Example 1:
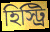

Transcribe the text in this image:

হিস্ট্রি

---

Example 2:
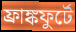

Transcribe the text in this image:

ফ্রাঙ্কফুর্টে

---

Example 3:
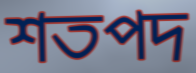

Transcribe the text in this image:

শতপদ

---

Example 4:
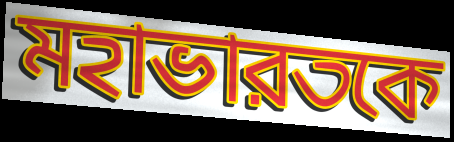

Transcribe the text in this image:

মহাভারতকে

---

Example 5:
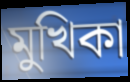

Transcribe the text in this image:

মুখিকা